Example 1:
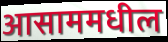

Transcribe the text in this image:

आसाममधील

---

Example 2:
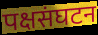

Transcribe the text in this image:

पक्षसंघटन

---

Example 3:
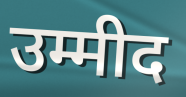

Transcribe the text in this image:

उम्मीद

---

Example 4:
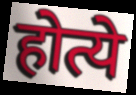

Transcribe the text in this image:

होत्ये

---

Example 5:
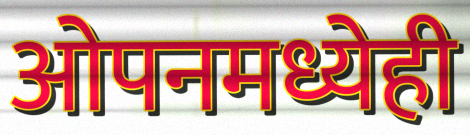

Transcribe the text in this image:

ओपनमध्येही